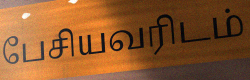
பேசியவரிடம்